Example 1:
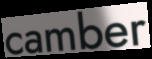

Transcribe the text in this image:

camber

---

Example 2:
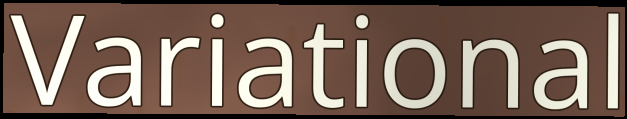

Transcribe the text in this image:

Variational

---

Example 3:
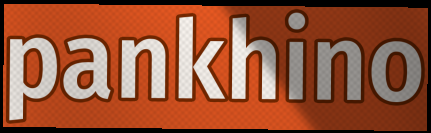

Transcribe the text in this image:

pankhino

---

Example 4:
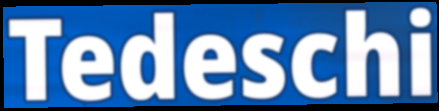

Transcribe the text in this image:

Tedeschi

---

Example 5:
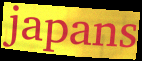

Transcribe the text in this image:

japans